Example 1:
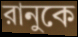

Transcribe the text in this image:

রানুকে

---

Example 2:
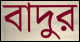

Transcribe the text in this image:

বাদুর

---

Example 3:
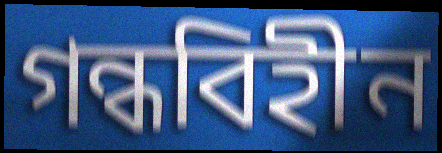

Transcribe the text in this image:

গন্ধবিহীন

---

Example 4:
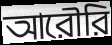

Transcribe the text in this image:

আরৌরি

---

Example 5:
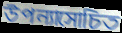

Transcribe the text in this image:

উপন্যাসোচিত